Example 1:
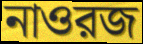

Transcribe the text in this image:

নাওরজ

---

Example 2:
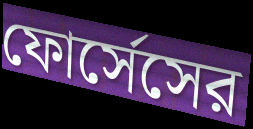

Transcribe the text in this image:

ফোর্সেসের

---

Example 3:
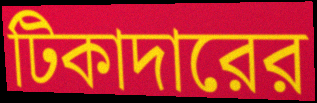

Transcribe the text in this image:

টিকাদারের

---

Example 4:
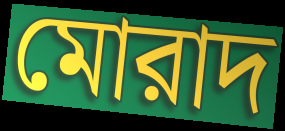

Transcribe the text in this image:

মোরাদ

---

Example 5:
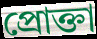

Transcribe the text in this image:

প্রোক্তা